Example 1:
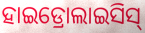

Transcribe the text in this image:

ହାଇଡ୍ରୋଲାଇସିସ୍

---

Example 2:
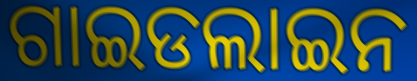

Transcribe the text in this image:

ଗାଇଡଲାଇନ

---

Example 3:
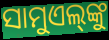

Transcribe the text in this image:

ସାମୁଏଲ୍‌ଙ୍କୁ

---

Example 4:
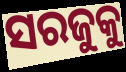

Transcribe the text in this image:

ସରଜୁକୁ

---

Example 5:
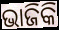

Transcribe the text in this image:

ଭାଜିକି